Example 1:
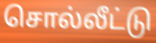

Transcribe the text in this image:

சொல்லீட்டு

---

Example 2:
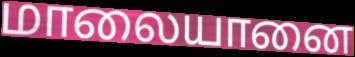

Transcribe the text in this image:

மாலையானை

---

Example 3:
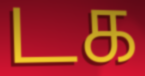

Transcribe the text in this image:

டக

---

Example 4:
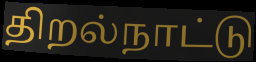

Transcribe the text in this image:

திறல்நாட்டு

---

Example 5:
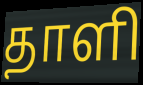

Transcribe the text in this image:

தாளி